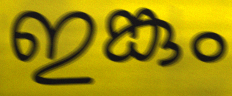
ഇങ്കും